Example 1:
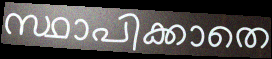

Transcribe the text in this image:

സ്ഥാപിക്കാതെ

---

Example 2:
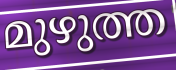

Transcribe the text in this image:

മുഴുത്ത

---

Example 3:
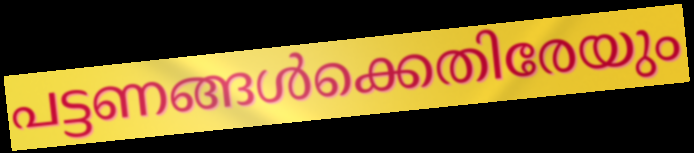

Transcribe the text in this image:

പട്ടണങ്ങൾക്കെതിരേയും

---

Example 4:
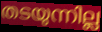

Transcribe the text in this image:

തടയുന്നില്ല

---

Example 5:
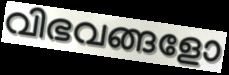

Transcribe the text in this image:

വിഭവങ്ങളോ